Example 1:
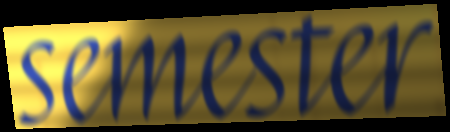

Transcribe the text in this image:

semester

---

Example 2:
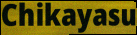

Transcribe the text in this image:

Chikayasu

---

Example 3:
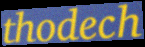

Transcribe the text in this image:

thodech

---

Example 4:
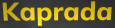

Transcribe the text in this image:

Kaprada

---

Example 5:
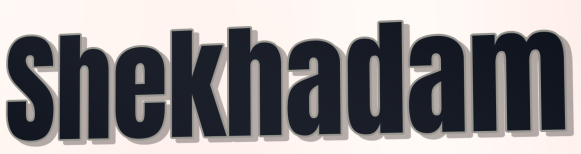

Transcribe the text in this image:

Shekhadam